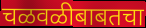
चळवळीबाबतचा